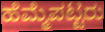
ಹೆಮ್ಮೆಪಟ್ಟರು